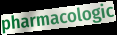
pharmacologic